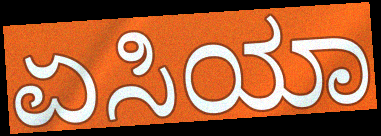
ಏಸಿಯಾ